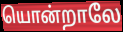
யொன்றாலே